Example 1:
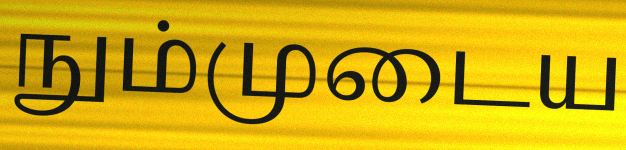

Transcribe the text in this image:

நும்முடைய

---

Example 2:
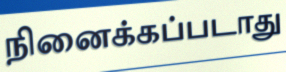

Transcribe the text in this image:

நினைக்கப்படாது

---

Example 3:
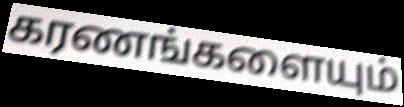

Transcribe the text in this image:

கரணங்களையும்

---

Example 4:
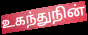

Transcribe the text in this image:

உகந்துநின்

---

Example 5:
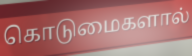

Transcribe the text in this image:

கொடுமைகளால்